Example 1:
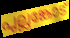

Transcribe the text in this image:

പുല്ലങ്കോട്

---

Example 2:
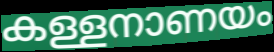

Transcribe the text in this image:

കള്ളനാണയം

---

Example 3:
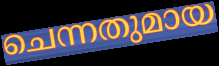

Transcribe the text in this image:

ചെന്നതുമായ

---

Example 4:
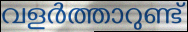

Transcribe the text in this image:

വളർത്താറുണ്ട്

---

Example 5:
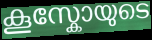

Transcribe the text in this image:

കൂസ്കോയുടെ